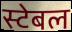
स्टेबल